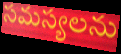
సమస్యలను